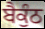
ਬੈਕੁੰਠ